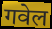
गवेल